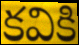
కవికి